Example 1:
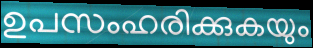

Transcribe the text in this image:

ഉപസംഹരിക്കുകയും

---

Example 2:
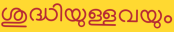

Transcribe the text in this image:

ശുദ്ധിയുള്ളവയും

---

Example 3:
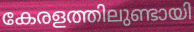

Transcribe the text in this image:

കേരളത്തിലുണ്ടായി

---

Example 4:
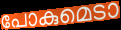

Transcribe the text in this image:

പോകുമെടാ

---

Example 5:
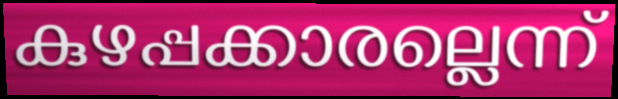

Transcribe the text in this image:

കുഴപ്പക്കാരല്ലെന്ന്